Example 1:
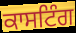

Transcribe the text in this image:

ਕਾਸਟਿੰਗ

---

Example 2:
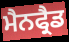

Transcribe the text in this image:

ਮੈਨਫ੍ਰੈਡ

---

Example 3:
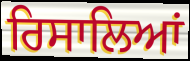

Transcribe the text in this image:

ਰਿਸਾਲਿਆਂ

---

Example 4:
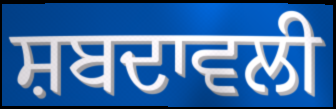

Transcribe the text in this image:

ਸ਼ਬਦਾਵਲੀ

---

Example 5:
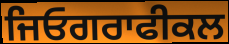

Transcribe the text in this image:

ਜਿਓਗਰਾਫੀਕਲ